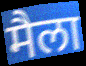
मैला